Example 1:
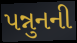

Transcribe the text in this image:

પન્નુનની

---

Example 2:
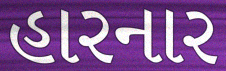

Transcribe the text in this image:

હારનાર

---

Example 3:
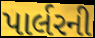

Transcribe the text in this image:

પાર્લરની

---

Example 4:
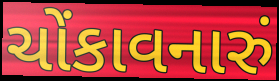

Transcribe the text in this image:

ચોંકાવનારું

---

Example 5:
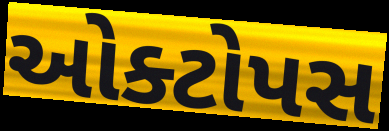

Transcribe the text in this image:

ઓક્ટોપસ